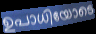
ഉപാധിയോടെ